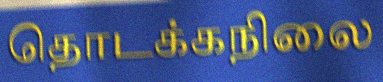
தொடக்கநிலை